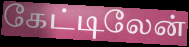
கேட்டிலேன்